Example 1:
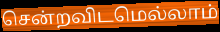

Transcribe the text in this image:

சென்றவிடமெல்லாம்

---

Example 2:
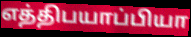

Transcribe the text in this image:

எத்திபயாப்பியா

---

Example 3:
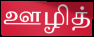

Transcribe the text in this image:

ஊழித்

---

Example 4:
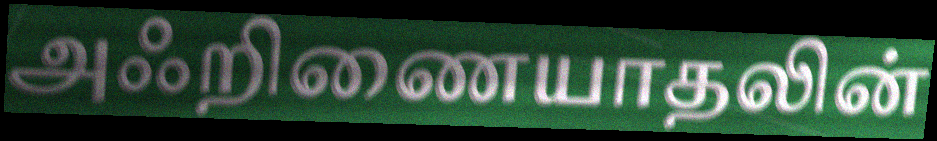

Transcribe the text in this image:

அஃறிணையாதலின்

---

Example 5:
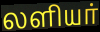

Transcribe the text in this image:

லளியர்